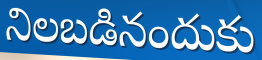
నిలబడినందుకు